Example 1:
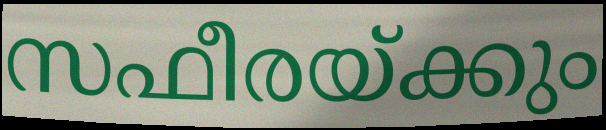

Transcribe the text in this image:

സഫീരയ്ക്കും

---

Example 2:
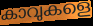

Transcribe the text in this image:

കാവുകളെ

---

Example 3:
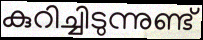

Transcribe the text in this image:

കുറിച്ചിടുന്നുണ്ട്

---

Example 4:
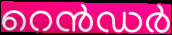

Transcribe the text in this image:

റെൻഡർ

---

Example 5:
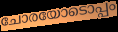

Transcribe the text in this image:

ചോരയോടൊപ്പം